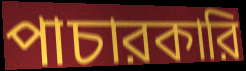
পাচারকারি